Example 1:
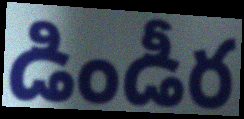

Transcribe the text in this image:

డిండీర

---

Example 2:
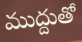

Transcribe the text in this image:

ముద్దుతో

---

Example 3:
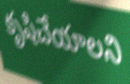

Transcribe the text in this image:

కృషిచేయాలని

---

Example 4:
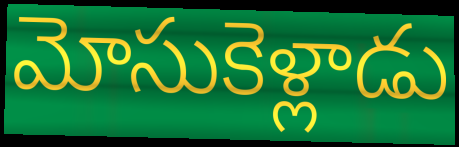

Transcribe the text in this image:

మోసుకెళ్లాడు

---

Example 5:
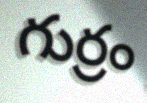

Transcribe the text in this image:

గుర్రం